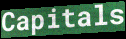
Capitals